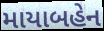
માયાબહેન